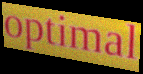
optimal